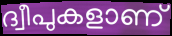
ദ്വീപുകളാണ്